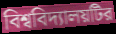
বিশ্ববিদ্যালয়টির